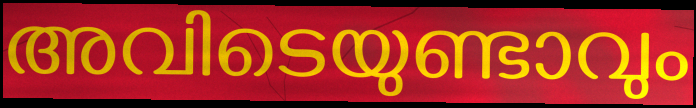
അവിടെയുണ്ടാവും